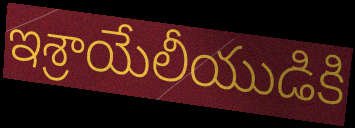
ఇశ్రాయేలీయుడికి